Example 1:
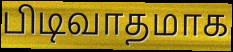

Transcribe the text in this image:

பிடிவாதமாக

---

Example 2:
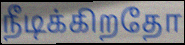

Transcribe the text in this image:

நீடிக்கிறதோ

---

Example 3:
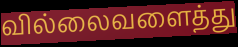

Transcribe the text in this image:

வில்லைவளைத்து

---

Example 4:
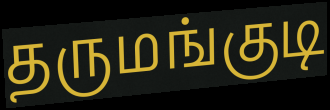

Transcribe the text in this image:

தருமங்குடி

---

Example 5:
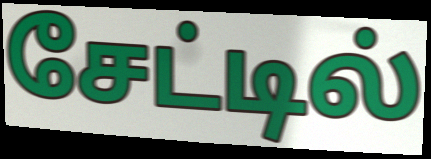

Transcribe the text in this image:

சேட்டில்